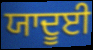
ਯਾਦੂਈ